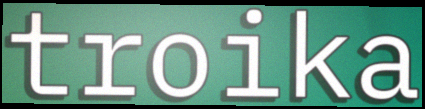
troika